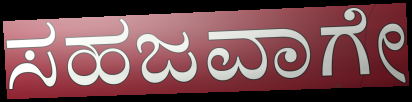
ಸಹಜವಾಗೇ